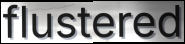
flustered